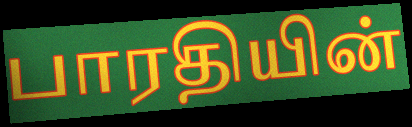
பாரதியின்